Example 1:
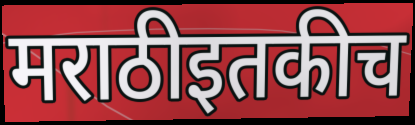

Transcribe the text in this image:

मराठीइतकीच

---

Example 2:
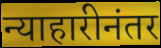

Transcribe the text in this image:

न्याहारीनंतर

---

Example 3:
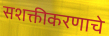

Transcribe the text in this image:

सशक्तीकरणाचे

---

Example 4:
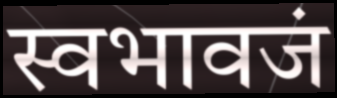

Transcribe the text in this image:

स्वभावजं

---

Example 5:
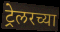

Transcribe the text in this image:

ट्रेलरच्या